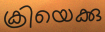
ക്രിയെക്കു